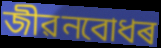
জীৱনবোধৰ